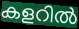
കളറിൽ